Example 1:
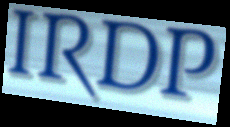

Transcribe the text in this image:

IRDP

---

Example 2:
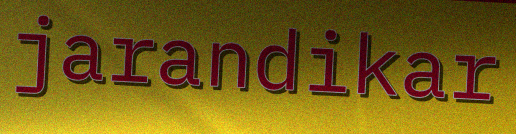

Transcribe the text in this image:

jarandikar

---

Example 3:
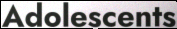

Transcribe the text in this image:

Adolescents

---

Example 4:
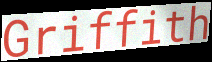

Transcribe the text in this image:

Griffith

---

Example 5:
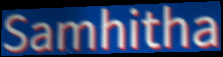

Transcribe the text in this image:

Samhitha